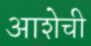
आशेची